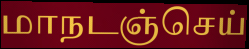
மாநடஞ்செய்